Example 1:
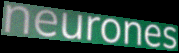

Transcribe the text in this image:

neurones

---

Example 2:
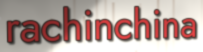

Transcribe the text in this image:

rachinchina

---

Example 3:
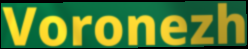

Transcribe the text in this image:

Voronezh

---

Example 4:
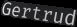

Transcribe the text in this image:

Gertrud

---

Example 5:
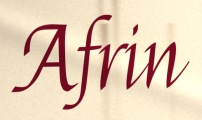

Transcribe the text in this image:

Afrin